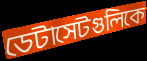
ডেটাসেটগুলিকে